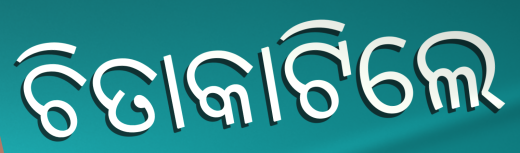
ଚିତାକାଟିଲେ